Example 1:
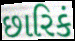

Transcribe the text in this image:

છારિકં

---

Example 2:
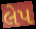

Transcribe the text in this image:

લેપ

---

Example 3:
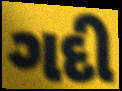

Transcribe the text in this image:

ગદી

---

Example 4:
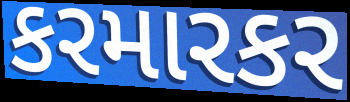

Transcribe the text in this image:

કરમારકર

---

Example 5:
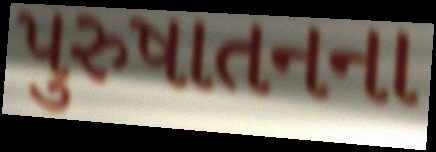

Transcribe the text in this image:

પુરુષાતનના